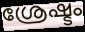
ശ്രേഷ്ടം